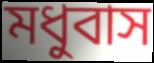
মধুবাস